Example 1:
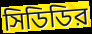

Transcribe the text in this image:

সিডিডির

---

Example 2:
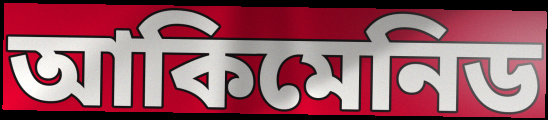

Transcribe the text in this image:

আকিমেনিড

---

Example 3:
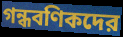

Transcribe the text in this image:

গন্ধবণিকদের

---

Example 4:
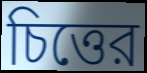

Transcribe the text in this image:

চিত্তের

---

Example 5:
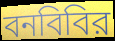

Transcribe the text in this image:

বনবিবির